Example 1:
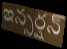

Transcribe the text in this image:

ఇన్సర్షన్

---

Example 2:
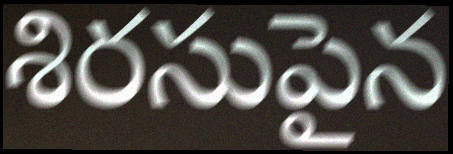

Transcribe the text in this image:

శిరసుపైన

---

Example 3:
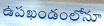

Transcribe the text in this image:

ఉపఖండంలోనూ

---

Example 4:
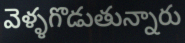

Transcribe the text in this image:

వెళ్ళగొడుతున్నారు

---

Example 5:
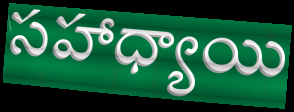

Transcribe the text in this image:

సహాధ్యాయి